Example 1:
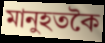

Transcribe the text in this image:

মানুহতকৈ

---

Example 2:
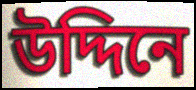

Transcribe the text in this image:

উদ্দিনে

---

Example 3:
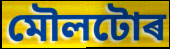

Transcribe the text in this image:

মৌলটোৰ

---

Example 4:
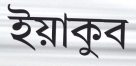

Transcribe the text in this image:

ইয়াকুব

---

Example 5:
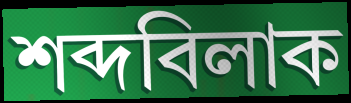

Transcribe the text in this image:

শব্দবিলাক